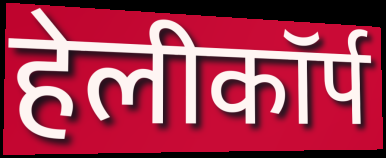
हेलीकॉर्प